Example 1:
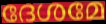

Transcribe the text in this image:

ദേശമേ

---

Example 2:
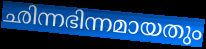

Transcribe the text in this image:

ഛിന്നഭിന്നമായതും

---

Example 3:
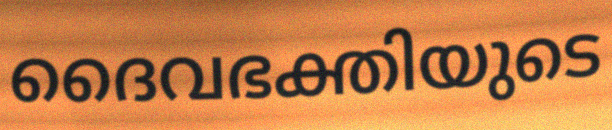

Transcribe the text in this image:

ദൈവഭക്തിയുടെ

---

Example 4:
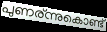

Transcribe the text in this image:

പുണര്ന്നുകൊണ്ട്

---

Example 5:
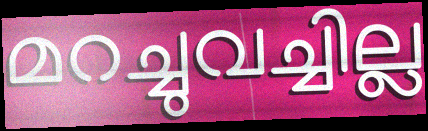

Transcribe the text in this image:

മറച്ചുവച്ചില്ല